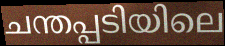
ചന്തപ്പടിയിലെ